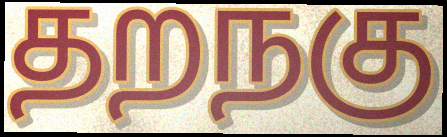
தறநகு